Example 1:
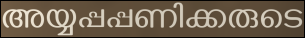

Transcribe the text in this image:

അയ്യപ്പപ്പണിക്കരുടെ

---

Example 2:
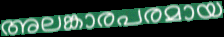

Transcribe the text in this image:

അലങ്കാരപരമായ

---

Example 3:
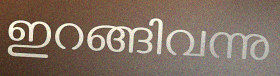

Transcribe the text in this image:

ഇറങ്ങിവന്നു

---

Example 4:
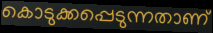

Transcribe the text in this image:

കൊടുക്കപ്പെടുന്നതാണ്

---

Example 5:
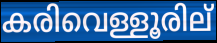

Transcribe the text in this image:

കരിവെള്ളൂരില്